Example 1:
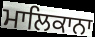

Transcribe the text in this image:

ਮਾਲਿਕਾਨਾ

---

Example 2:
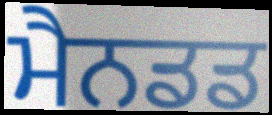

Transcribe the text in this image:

ਮੈਨਡਡ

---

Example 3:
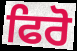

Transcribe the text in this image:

ਫਿਰੋ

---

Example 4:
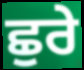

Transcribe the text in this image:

ਛੁਰੇ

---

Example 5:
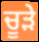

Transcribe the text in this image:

ਚੂੜੇ